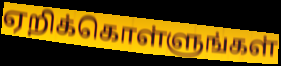
ஏறிக்கொள்ளுங்கள்